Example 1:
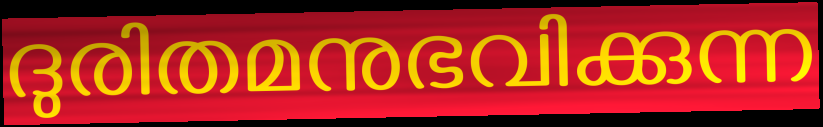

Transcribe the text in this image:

ദുരിതമനുഭവിക്കുന്ന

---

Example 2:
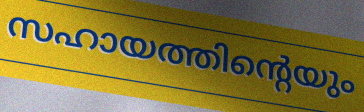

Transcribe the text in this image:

സഹായത്തിന്റെയും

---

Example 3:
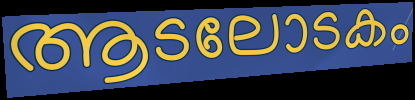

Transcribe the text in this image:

ആടലോടകം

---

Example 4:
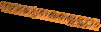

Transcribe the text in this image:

സാദ്ധ്യതകളെല്ലാം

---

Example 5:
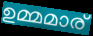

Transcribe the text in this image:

ഉമ്മമാര്